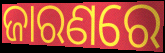
ଜାରଣରେ